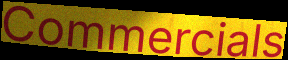
Commercials